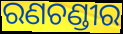
ରଣଚଣ୍ଡୀର